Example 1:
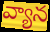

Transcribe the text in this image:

వ్యాన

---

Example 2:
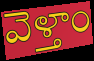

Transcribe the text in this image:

వెళ్తాం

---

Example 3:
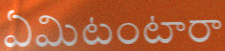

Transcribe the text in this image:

ఏమిటంటారా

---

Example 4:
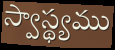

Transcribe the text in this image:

స్వాస్థ్యము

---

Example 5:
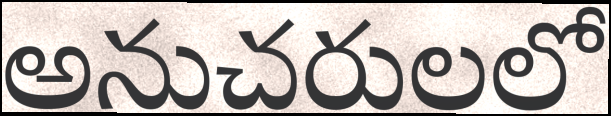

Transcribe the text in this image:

అనుచరులలో